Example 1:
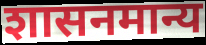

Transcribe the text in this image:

शासनमान्य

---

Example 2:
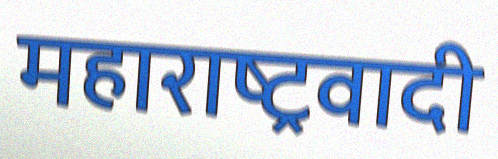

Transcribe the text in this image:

महाराष्ट्रवादी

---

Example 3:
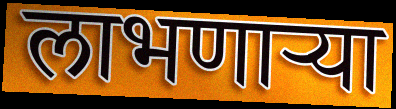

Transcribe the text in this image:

लाभणाऱ्या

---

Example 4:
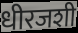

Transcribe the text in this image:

धीरजशी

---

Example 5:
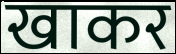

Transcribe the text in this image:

खाकर